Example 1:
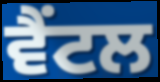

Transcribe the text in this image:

ਵੈਂਟਲ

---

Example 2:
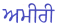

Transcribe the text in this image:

ਅਮੀਰੀ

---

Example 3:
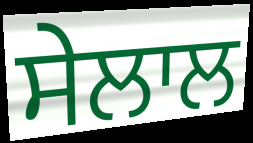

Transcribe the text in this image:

ਸੇਲਾਲ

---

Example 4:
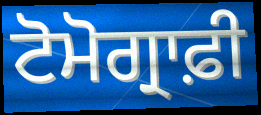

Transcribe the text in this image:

ਟੋਮੋਗ੍ਰਾਫ਼ੀ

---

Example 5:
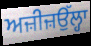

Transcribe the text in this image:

ਅਜ਼ੀਜ਼ਉੱਲ੍ਹਾ